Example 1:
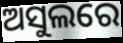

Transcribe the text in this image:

ଅସୁଲରେ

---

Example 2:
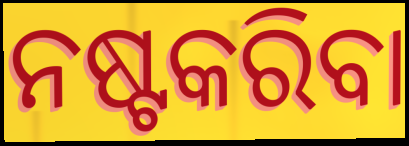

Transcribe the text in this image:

ନଷ୍ଟକରିବା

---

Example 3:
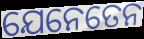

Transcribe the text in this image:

ଯେନେତେନ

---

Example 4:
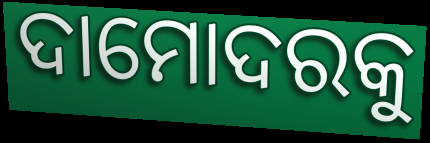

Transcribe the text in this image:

ଦାମୋଦରକୁ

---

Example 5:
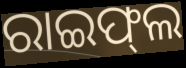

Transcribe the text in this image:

ରାଇଫ୍‌ଲ